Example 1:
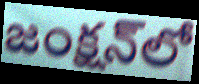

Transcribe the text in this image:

జంక్షన్‌లో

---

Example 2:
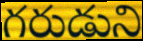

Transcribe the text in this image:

గరుడుని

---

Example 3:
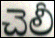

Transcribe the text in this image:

చెలీ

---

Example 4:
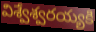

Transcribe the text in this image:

విశ్వేశ్వరయ్యకి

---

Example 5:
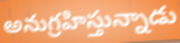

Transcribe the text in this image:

అనుగ్రహిస్తున్నాడు